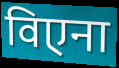
विएना